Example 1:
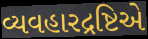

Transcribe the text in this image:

વ્યવહારદ્રષ્ટિએ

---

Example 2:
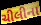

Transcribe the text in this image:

ચીલીના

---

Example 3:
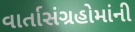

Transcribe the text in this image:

વાર્તાસંગ્રહોમાંની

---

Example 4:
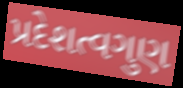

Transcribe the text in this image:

પ્રદેશત્વગુણ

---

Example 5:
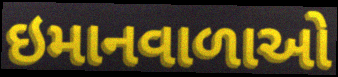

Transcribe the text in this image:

ઇમાનવાળાઓ